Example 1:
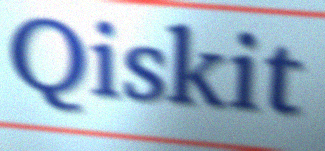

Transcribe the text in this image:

Qiskit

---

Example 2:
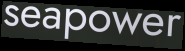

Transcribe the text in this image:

seapower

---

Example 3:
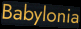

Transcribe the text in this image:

Babylonia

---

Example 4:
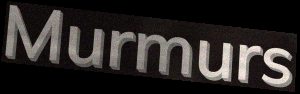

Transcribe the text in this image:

Murmurs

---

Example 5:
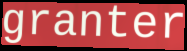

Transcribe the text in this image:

granter